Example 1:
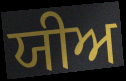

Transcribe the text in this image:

ਯੀਅ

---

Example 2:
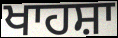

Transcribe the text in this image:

ਖਾਹਸ਼ਾ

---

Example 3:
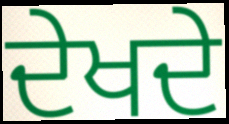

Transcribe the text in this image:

ਦੇਖਦੇ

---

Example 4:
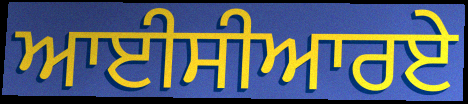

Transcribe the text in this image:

ਆਈਸੀਆਰਏ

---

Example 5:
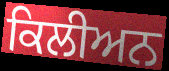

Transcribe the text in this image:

ਕਿਲੀਅਨ